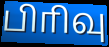
பிரிவு